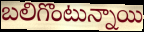
బలిగొంటున్నాయి